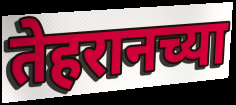
तेहरानच्या